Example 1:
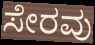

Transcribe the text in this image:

ಸೇರವು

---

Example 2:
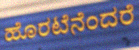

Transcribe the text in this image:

ಹೊರಟೆನೆಂದರೆ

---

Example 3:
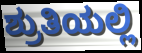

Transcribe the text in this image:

ಶ್ರುತಿಯಲ್ಲಿ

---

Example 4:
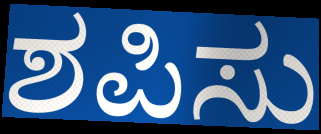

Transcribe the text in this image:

ಶಪಿಸು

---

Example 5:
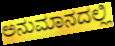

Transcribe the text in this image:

ಅನುಮಾನದಲ್ಲಿ